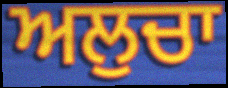
ਅਲੁਚਾ